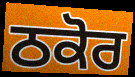
ਠਕੋਰ